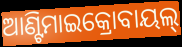
ଆଣ୍ଟିମାଇକ୍ରୋବାୟଲ୍